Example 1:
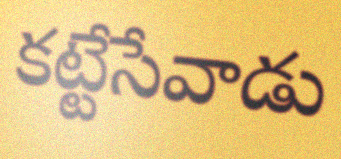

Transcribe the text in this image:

కట్టేసేవాడు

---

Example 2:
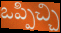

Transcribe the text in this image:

ఒప్పిచ్చి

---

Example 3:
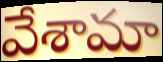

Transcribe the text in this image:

వేశామా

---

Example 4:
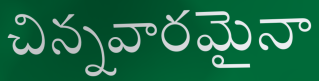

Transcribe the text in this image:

చిన్నవారమైనా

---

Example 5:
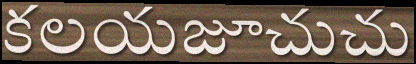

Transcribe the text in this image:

కలయజూచుచు